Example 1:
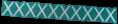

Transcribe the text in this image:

XXXXXXXXXX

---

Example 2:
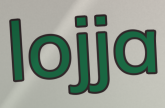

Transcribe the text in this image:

lojja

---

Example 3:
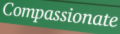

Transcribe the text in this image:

Compassionate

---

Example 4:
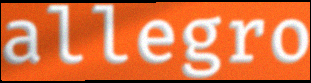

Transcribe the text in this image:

allegro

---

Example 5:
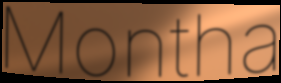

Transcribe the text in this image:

Montha